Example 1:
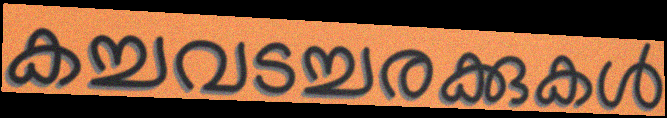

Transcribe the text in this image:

കച്ചവടച്ചരക്കുകൾ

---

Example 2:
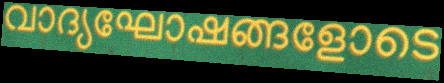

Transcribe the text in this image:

വാദ്യഘോഷങ്ങളോടെ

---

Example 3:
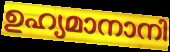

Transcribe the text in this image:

ഉഹ്യമാനാനി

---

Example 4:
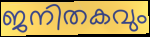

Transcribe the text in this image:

ജനിതകവും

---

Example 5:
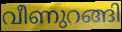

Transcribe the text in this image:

വീണുറങ്ങി